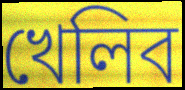
খেলিব